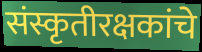
संस्कृतीरक्षकांचे